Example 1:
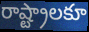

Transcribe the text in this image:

రాష్ట్రాలకూ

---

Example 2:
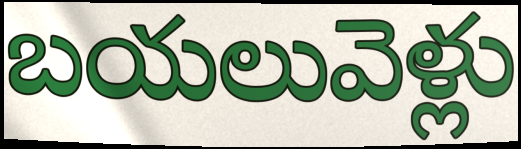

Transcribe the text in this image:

బయలువెళ్లు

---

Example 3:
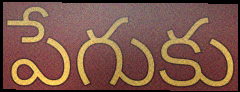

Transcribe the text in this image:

పేగుకు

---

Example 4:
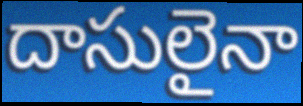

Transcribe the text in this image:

దాసులైనా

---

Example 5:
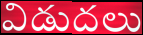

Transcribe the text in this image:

విడుదలు